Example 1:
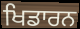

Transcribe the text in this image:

ਖਿਡਾਰਨ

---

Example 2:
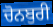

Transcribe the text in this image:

ਚੋਨਬੁਰੀ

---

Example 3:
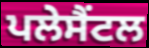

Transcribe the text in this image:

ਪਲੇਸੈਂਟਲ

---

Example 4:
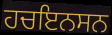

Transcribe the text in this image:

ਹਚਇਨਸਨ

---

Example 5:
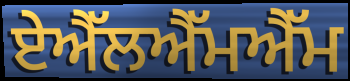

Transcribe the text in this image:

ਏਐੱਲਐੱਮਐੱਮ